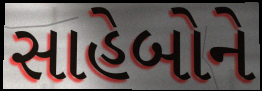
સાહેબોને